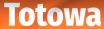
Totowa